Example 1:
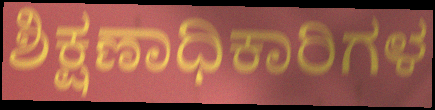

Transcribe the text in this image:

ಶಿಕ್ಷಣಾಧಿಕಾರಿಗಳ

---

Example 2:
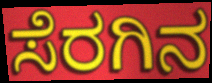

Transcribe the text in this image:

ಸೆರಗಿನ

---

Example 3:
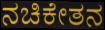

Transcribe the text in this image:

ನಚಿಕೇತನ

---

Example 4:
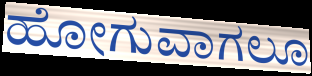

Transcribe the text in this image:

ಹೋಗುವಾಗಲೂ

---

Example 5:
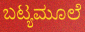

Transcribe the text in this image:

ಬಟ್ಯಮೂಲೆ